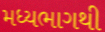
મધ્યભાગથી